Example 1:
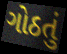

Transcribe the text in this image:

ગોઠતું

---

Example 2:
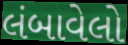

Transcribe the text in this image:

લંબાવેલો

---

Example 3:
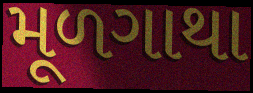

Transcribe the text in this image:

મૂળગાથા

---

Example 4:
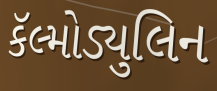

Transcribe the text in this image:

કૅલ્મોડ્યુલિન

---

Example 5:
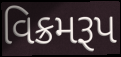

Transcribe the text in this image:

વિક્રમરૂપ